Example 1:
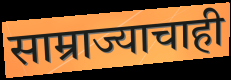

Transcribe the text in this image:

साम्राज्याचाही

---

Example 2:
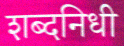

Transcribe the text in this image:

शब्दनिधी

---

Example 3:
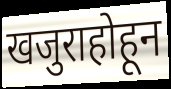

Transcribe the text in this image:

खजुराहोहून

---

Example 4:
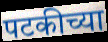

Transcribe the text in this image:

पटकीच्या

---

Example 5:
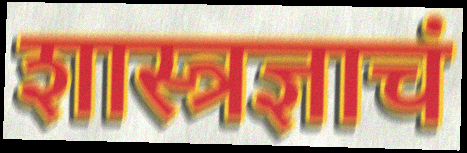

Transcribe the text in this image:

शास्त्रज्ञाचं